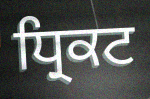
ਧ੍ਰਿਕਟ